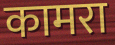
कामरा